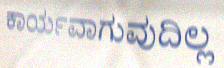
ಕಾರ್ಯವಾಗುವುದಿಲ್ಲ